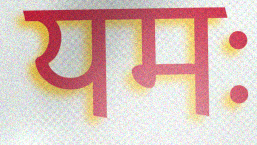
यमः